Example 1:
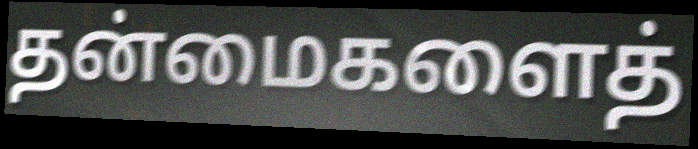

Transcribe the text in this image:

தன்மைகளைத்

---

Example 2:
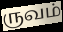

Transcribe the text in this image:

ருவம்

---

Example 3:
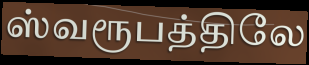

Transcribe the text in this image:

ஸ்வரூபத்திலே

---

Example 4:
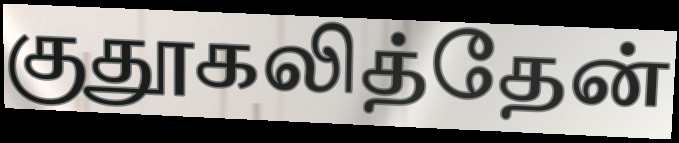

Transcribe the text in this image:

குதூகலித்தேன்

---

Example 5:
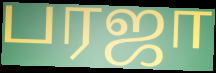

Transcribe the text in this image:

பரஜா